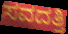
ಸವದತ್ತಿ